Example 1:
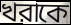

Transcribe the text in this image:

খরাকে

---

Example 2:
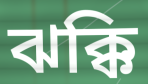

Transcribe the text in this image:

ঝক্কি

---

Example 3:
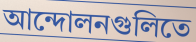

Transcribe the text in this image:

আন্দোলনগুলিতে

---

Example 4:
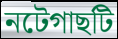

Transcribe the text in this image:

নটেগাছটি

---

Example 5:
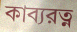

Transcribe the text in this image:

কাব্যরত্ন